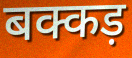
बक्कड़